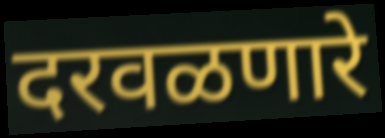
दरवळणारे